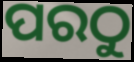
ପରଠୁ